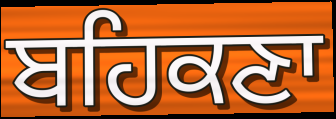
ਬਹਿਕਣਾ